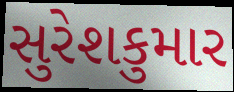
સુરેશકુમાર